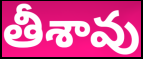
తీశావు